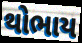
થોભાય